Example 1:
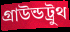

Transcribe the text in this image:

গ্রাউন্ডট্রুথ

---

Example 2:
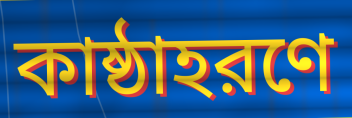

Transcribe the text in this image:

কাষ্ঠাহরণে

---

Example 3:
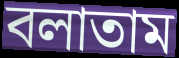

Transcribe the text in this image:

বলাতাম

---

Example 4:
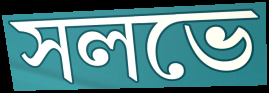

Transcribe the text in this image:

সলভে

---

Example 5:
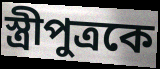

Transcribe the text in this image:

স্ত্রীপুত্রকে